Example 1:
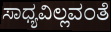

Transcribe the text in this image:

ಸಾಧ್ಯವಿಲ್ಲವಂತೆ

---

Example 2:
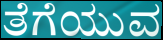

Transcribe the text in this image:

ತೆಗೆಯುವ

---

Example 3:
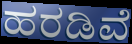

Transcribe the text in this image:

ಹರಡಿವೆ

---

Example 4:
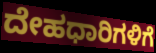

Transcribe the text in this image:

ದೇಹಧಾರಿಗಳಿಗೆ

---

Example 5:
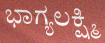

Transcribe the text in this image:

ಭಾಗ್ಯಲಕ್ಷ್ಮಿ